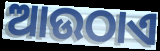
ଆଉଠାଏ